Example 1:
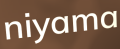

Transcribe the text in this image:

niyama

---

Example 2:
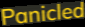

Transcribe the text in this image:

Panicled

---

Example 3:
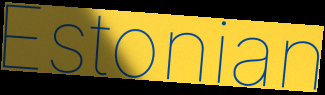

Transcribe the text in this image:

Estonian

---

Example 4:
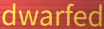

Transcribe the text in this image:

dwarfed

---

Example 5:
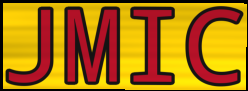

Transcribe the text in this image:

JMIC